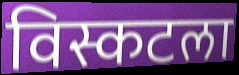
विस्कटला